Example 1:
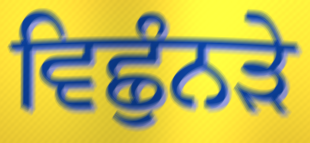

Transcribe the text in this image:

ਵਿਛੁੰਨੜੇ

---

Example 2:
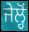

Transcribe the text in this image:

ਜੇਲ੍ਹੋਂ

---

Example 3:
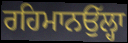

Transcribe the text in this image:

ਰਹਿਮਾਨਉੱਲ੍ਹਾ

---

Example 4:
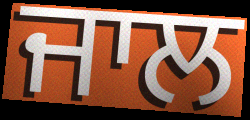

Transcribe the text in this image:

ਜਾਲ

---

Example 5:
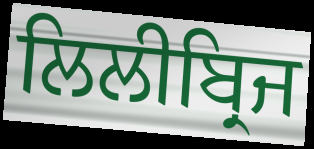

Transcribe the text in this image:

ਲਿਲੀਬ੍ਰਿਜ